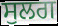
ਸੁਲਗ